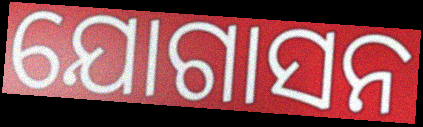
ଯୋଗାସନ